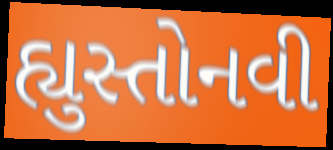
હ્યુસ્તોનવી